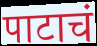
पाटाचं